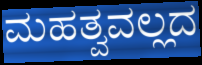
ಮಹತ್ವವಲ್ಲದ